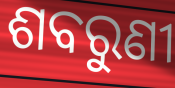
ଶବରୁଣୀ